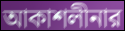
আকাশলীনার